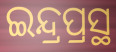
ଇନ୍ଦ୍ରପ୍ରସ୍ଥ